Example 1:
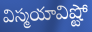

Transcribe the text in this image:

విస్మయావిష్టో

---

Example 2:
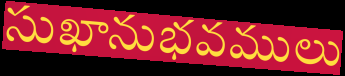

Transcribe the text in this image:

సుఖానుభవములు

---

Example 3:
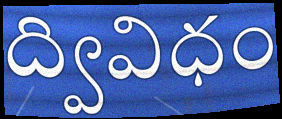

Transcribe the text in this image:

ద్వివిధం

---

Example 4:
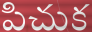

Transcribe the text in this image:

పిచుక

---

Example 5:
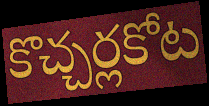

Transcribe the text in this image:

కొచ్చర్లకోట